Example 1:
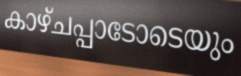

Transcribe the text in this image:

കാഴ്ചപ്പാടോടെയും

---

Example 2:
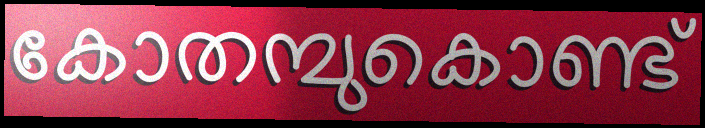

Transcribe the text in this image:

കോതമ്പുകൊണ്ട്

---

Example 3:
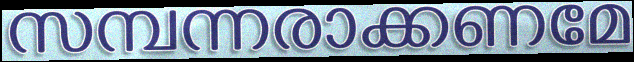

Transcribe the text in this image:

സമ്പന്നരാക്കണമേ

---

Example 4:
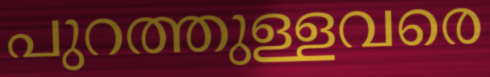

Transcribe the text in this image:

പുറത്തുള്ളവരെ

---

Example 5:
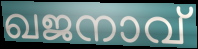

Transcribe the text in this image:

ഖജനാവ്